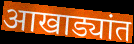
आखाड्यांत